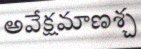
అవేక్షమాణశ్చ